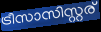
ട്രീസാസിസ്റ്റര്